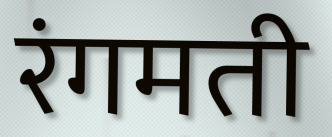
रंगमती